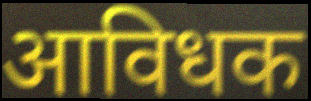
आविधक